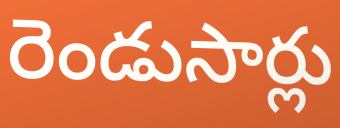
రెండుసార్లు